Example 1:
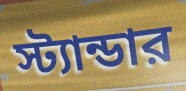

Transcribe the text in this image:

স্ট্যান্ডার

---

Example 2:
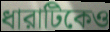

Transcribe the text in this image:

ধারাটিকেও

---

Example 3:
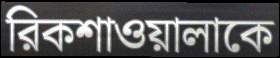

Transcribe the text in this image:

রিকশাওয়ালাকে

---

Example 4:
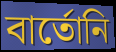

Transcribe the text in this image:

বার্তোনি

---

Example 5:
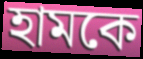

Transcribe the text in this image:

হামকে